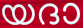
യദാ